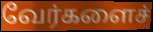
வேர்களைச்